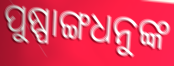
ପୁଷ୍ପାଙ୍ଗଧନୁଙ୍କ